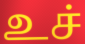
உச்